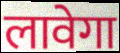
लावेगा